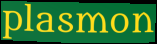
plasmon